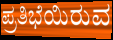
ಪ್ರತಿಭೆಯಿರುವ